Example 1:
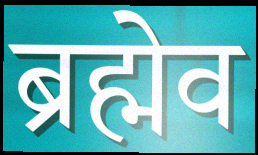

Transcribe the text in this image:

ब्रह्मेव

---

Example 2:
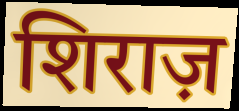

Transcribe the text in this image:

शिराज़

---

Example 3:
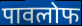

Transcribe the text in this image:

पावलोफ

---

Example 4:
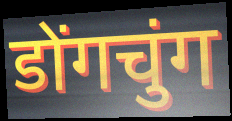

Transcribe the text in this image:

डोंगचुंग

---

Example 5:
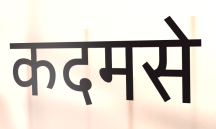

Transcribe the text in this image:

कदमसे